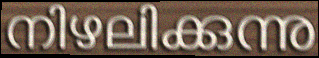
നിഴലിക്കുന്നു